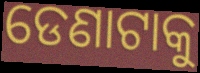
ଡେଣାଟାକୁ